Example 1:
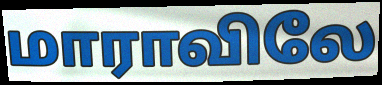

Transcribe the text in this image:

மாராவிலே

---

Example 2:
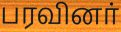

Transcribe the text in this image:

பரவினர்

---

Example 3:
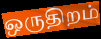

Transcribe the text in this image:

ஒருதிறம்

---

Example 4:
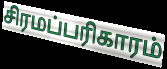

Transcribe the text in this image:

சிரமப்பரிகாரம்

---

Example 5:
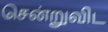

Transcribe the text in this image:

சென்றுவிட